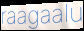
raagaalu